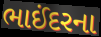
ભાઈંદરના